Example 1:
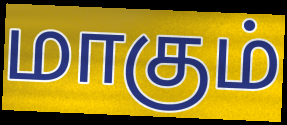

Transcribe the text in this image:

மாகும்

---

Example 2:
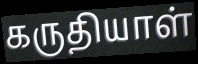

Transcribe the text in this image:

கருதியாள்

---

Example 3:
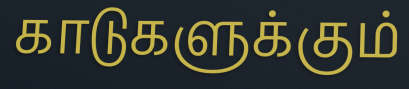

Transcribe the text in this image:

காடுகளுக்கும்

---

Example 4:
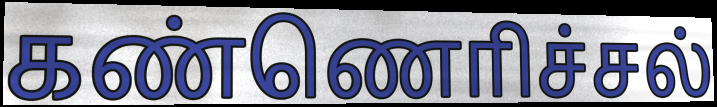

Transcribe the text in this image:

கண்ணெரிச்சல்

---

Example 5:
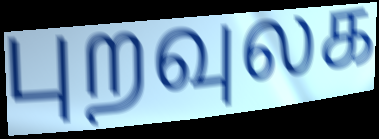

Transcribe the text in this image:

புறவுலக